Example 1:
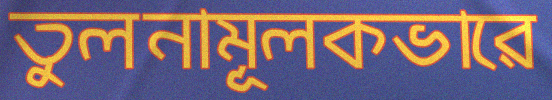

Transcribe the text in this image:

তুলনামূলকভাৱে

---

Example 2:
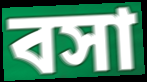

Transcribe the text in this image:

বসা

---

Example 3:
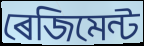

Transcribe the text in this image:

ৰেজিমেন্ট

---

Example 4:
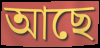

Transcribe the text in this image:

আছে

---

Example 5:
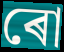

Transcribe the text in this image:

ৰো